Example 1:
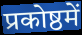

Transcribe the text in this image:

प्रकोष्ठमें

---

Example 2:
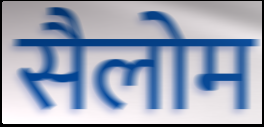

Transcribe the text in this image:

सैलोम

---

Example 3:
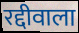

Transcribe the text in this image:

रद्दीवाला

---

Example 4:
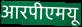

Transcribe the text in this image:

आरपीएमयू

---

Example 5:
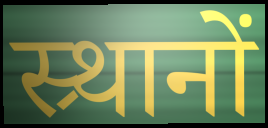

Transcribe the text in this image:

स्र्थानों